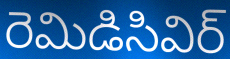
రెమిడిసివిర్